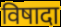
विषादा